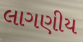
લાગણીય